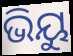
ଭିୟୁ